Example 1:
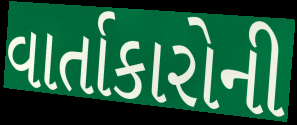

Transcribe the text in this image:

વાર્તાકારોની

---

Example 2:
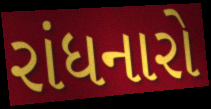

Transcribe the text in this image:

રાંધનારો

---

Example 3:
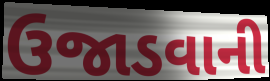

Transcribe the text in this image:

ઉજાડવાની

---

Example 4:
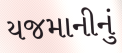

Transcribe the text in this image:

યજમાનીનું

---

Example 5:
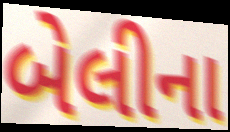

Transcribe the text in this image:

બેલીના